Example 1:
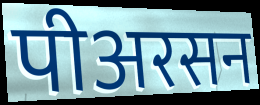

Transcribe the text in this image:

पीअरसन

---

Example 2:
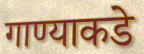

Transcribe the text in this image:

गाण्याकडे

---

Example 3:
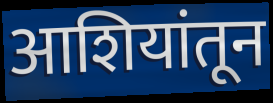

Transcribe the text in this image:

आशियांतून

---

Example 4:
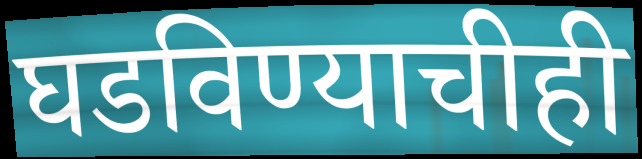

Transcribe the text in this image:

घडविण्याचीही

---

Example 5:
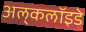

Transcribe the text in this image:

अल्कलॉइडे